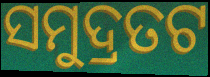
ସମୁଦ୍ରତଟ